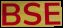
BSE